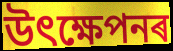
উৎক্ষেপনৰ